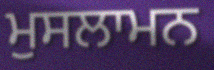
ਮੁਸਲਾਮਨ